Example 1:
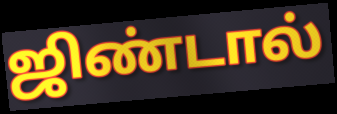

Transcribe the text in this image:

ஜிண்டால்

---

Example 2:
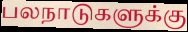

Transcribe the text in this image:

பலநாடுகளுக்கு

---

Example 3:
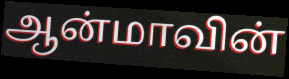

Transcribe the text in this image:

ஆன்மாவின்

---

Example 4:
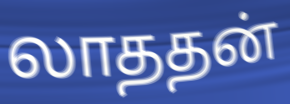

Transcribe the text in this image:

லாததன்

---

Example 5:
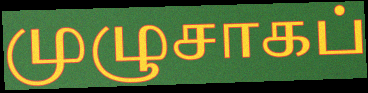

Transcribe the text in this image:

முழுசாகப்